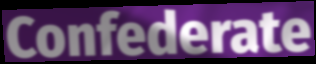
Confederate